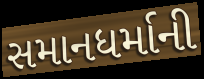
સમાનધર્માની